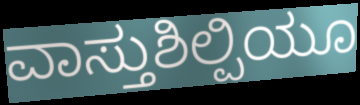
ವಾಸ್ತುಶಿಲ್ಪಿಯೂ